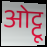
ओट्टू